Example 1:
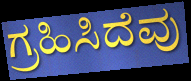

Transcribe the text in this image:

ಗ್ರಹಿಸಿದೆವು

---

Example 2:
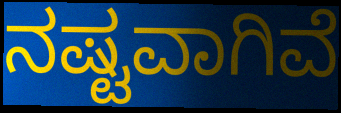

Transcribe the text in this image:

ನಷ್ಟವಾಗಿವೆ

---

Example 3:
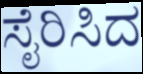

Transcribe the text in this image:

ಸೈರಿಸಿದ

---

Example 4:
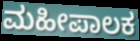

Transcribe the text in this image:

ಮಹೀಪಾಲಕ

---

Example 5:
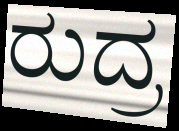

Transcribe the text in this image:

ರುದ್ರ